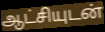
ஆட்சியுடன்